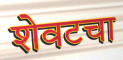
शेवटचा